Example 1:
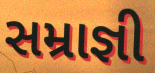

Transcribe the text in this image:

સમ્રાજ્ઞી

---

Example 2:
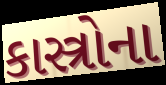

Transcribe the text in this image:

કાસ્ત્રોના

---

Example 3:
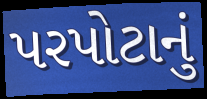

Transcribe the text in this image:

પરપોટાનું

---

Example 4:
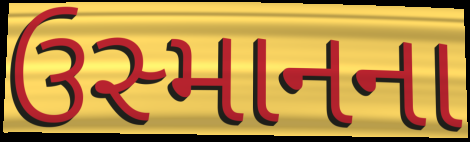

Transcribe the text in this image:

ઉસ્માનના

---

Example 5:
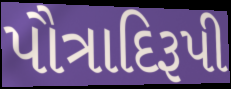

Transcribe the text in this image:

પૌત્રાદિરૂપી